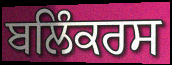
ਬਲਿੰਕਰਸ